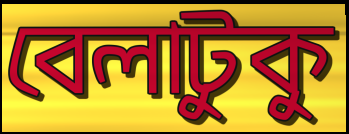
বেলাটুকু